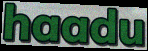
haadu